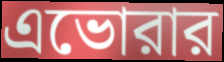
এভোরার